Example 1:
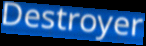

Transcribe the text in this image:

Destroyer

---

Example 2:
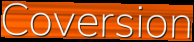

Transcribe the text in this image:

Coversion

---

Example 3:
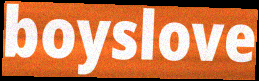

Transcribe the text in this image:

boyslove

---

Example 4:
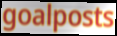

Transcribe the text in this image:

goalposts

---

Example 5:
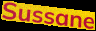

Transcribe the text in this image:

Sussane